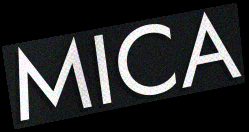
MICA